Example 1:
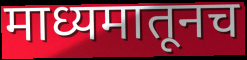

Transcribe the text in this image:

माध्यमातूनच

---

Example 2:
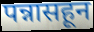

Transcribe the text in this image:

पन्नासहून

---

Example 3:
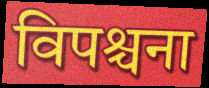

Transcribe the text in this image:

विपश्चना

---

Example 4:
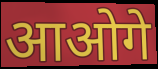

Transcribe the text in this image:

आओगे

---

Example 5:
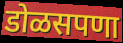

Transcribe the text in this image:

डोळसपणा